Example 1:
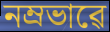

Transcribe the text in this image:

নম্ৰভাৱে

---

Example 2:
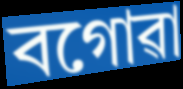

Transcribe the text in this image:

বগোৱা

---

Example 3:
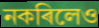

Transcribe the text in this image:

নকৰিলেও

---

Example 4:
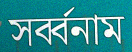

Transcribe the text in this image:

সৰ্ব্বনাম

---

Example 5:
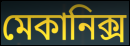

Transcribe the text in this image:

মেকানিক্স